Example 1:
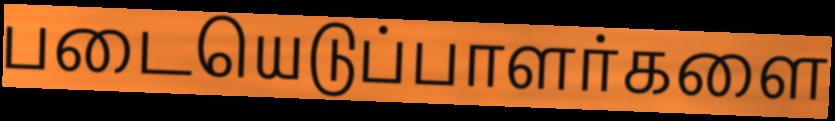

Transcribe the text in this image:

படையெடுப்பாளர்களை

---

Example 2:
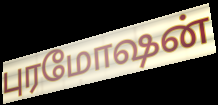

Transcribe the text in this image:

புரமோஷன்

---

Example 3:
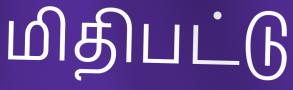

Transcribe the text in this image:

மிதிபட்டு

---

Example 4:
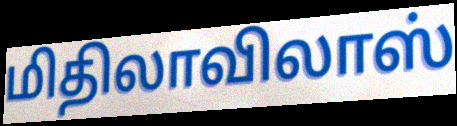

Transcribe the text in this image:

மிதிலாவிலாஸ்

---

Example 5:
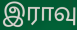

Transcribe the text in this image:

இராவு